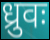
ध्रुवः